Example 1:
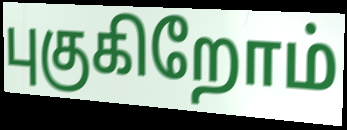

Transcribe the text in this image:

புகுகிறோம்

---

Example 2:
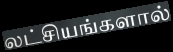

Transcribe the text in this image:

லட்சியங்களால்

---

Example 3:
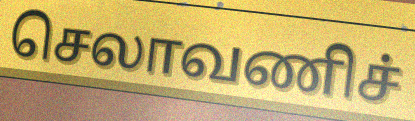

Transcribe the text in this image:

செலாவணிச்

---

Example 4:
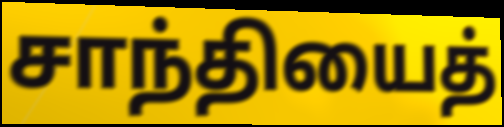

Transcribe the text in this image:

சாந்தியைத்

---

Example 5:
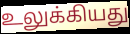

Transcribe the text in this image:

உலுக்கியது